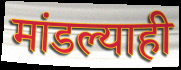
मांडल्याही